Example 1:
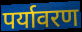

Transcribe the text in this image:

पर्यावरण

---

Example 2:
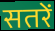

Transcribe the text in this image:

सतरें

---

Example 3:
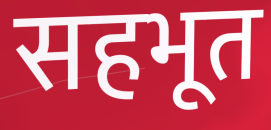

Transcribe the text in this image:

सहभूत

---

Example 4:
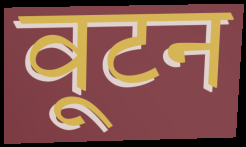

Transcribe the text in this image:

वूटन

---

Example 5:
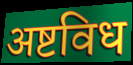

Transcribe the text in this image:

अष्टविध